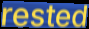
rested